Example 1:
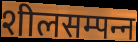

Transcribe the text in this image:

शीलसम्पन्न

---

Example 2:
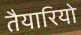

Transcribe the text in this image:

तैयारियो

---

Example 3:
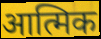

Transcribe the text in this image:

आत्मिक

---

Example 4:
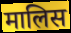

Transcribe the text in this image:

मालिस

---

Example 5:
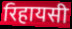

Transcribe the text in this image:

रिहायसी